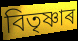
বিতৃষ্ণাৰ